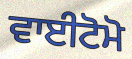
ਵਾਈਟੋਮੋ